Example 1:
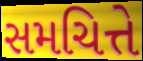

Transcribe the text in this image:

સમચિત્તે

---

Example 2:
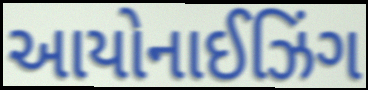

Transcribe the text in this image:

આયોનાઈઝિંગ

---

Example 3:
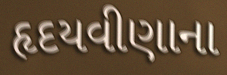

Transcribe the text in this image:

હૃદયવીણાના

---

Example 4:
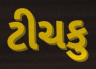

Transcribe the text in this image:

ટીચકુ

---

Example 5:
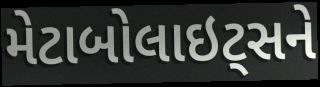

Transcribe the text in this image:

મેટાબોલાઇટ્સને